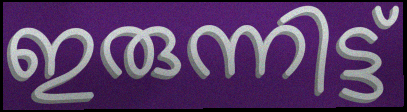
ഇരുന്നിട്ട്